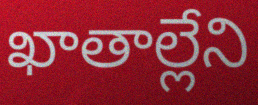
ఖాతాల్లేని